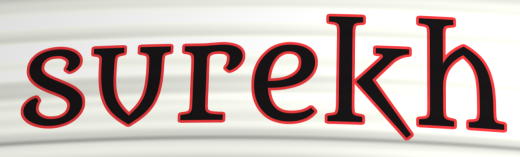
surekh